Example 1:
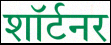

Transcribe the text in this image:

शॉर्टनर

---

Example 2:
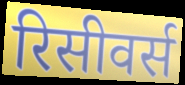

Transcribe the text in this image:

रिसीवर्स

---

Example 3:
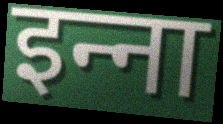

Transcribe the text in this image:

इन्ना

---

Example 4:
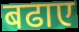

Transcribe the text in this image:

बढाए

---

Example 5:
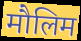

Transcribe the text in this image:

मौलिम